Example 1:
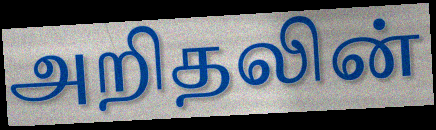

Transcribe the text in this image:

அறிதலின்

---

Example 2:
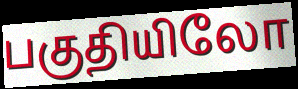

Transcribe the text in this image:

பகுதியிலோ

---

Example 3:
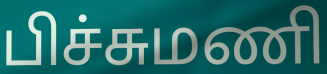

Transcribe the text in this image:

பிச்சுமணி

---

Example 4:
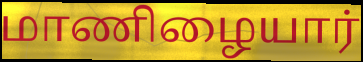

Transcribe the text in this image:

மாணிழையார்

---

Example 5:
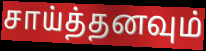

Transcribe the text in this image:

சாய்த்தனவும்